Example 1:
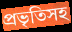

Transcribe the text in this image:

প্রভৃতিসহ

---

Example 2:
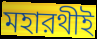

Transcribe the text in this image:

মহারথীই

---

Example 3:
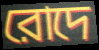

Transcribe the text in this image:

রোদে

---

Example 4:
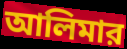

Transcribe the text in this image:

আলিমার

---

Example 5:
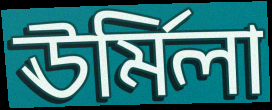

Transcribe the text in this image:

ঊর্মিলা